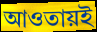
আওতায়ই